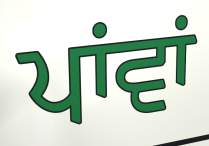
ਪਾਂਵਾਂ